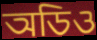
অডিও